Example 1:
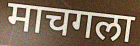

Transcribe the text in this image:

माचगला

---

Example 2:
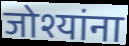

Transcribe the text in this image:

जोश्यांना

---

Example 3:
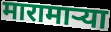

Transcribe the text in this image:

मारामार्‍या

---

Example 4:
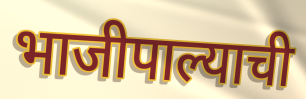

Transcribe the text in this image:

भाजीपाल्याची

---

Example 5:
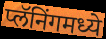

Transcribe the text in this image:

प्लॅनिंगमध्ये